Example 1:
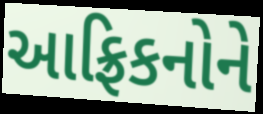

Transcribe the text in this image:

આફ્રિકનોને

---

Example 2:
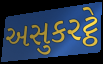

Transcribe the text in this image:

અસુકરટ્ઠે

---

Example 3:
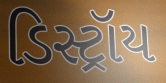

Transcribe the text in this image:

ડિસ્ટ્રૉય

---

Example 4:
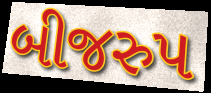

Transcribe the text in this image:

બીજરુપ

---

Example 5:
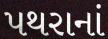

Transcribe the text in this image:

પથરાનાં